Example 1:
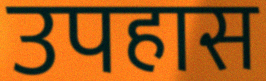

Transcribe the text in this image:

उपहास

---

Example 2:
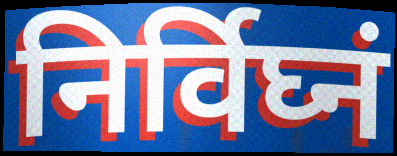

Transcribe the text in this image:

निर्विघ्नं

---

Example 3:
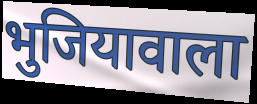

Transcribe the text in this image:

भुजियावाला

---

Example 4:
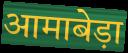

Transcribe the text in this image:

आमाबेड़ा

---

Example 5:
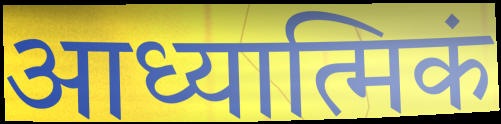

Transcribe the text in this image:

आध्यात्मिकं